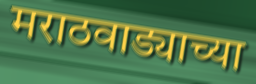
मराठवाड्याच्या